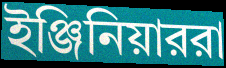
ইঞ্জিনিয়াররা